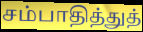
சம்பாதித்துத்